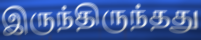
இருந்திருந்தது